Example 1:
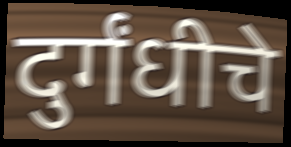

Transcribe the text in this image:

दुर्गंधीचे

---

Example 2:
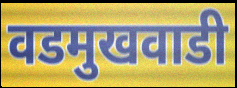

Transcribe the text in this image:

वडमुखवाडी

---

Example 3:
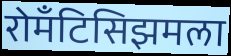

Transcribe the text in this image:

रोमँटिसिझमला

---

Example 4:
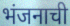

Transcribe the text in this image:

भंजनाची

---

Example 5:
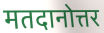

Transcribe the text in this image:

मतदानोत्तर